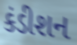
કંડીશન